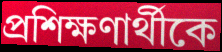
প্রশিক্ষণার্থীকে